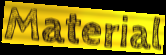
Material